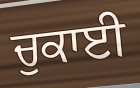
ਚੁਕਾਈ